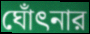
ঘোঁৎনার